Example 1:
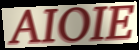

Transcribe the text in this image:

AIOIE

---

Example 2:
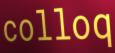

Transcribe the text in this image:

colloq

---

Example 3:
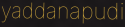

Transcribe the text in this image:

yaddanapudi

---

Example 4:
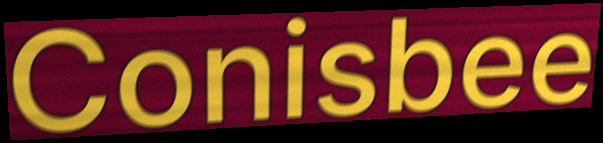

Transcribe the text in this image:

Conisbee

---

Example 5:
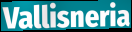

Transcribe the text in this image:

Vallisneria